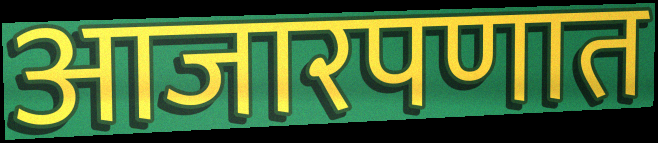
आजारपणात